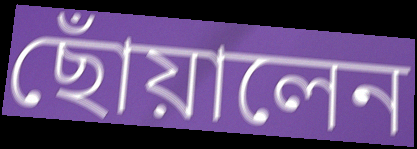
ছোঁয়ালেন